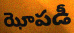
ఝోపడీ